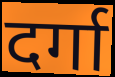
दर्गा